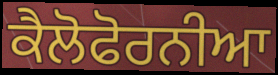
ਕੈਲੋਫੋਰਨੀਆ